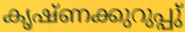
കൃഷ്ണക്കുറുപ്പു്